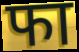
फा